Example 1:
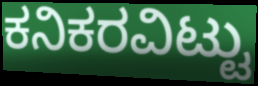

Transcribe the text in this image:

ಕನಿಕರವಿಟ್ಟು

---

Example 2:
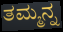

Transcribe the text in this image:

ತಮ್ಮನ್ನ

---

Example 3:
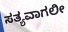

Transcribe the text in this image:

ಸತ್ಯವಾಗಲೀ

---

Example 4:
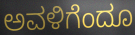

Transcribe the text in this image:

ಅವಳಿಗೆಂದೂ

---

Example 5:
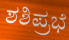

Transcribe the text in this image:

ಶಶಿಪ್ರಭೆ